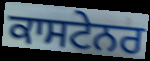
ਕਾਸਟੇਨਰ